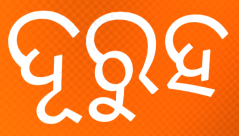
ଦୂରୁହ